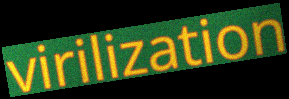
virilization